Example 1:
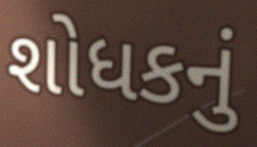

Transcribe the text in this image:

શોધકનું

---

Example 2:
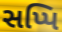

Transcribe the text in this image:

સપ્પિ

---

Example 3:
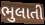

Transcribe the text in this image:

ભુલાતી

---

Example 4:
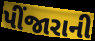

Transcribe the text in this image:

પીંજારાની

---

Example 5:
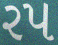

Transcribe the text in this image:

રપ